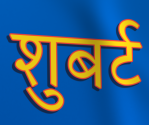
शुबर्ट